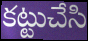
కట్టుచేసి